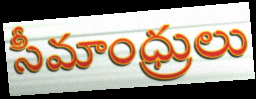
సీమాంధ్రులు